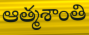
ఆత్మశాంతి